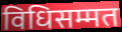
विधिसम्मत